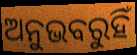
ଅନୁଭବରୁହିଁ